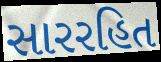
સારરહિત